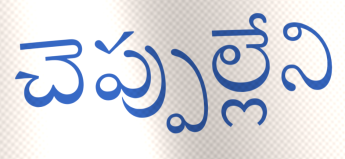
చెప్పుల్లేని